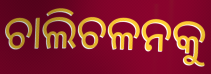
ଚାଲିଚଳନକୁ